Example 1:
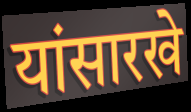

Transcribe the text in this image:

यांसारखे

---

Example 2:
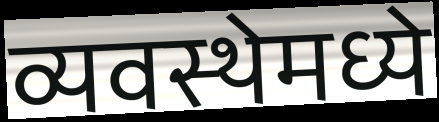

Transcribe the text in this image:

व्यवस्थेमध्ये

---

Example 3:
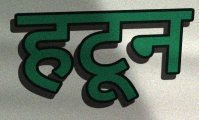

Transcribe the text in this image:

हटून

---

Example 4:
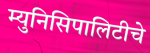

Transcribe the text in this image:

म्युनिसिपालिटीचे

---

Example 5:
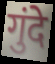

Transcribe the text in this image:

गुंदे